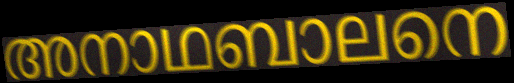
അനാഥബാലനെ